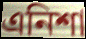
এনিশা